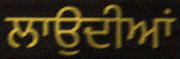
ਲਾਉਦੀਆਂ